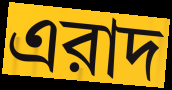
এরাদ